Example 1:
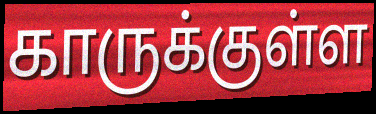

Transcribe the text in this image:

காருக்குள்ள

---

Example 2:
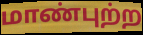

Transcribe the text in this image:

மாண்புற்ற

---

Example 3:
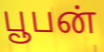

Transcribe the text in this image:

பூபன்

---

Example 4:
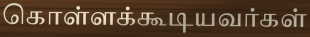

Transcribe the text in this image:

கொள்ளக்கூடியவர்கள்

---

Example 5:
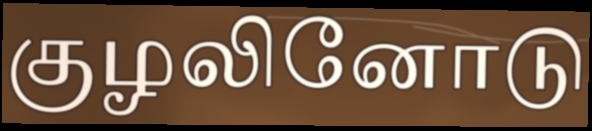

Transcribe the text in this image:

குழலினோடு